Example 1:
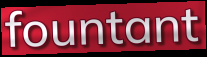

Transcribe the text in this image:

fountant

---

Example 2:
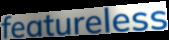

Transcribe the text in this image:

featureless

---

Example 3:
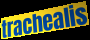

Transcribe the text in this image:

trachealis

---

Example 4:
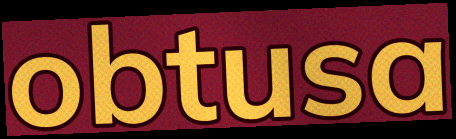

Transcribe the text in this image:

obtusa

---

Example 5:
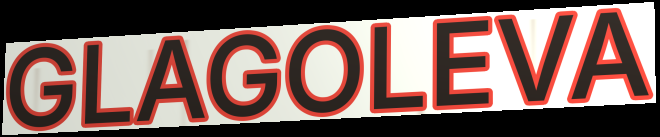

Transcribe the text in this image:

GLAGOLEVA